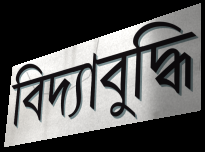
বিদ্যাবুদ্ধি